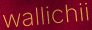
wallichii